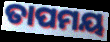
ତାପମୟ